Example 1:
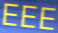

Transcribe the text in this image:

EEE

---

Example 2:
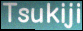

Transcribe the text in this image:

Tsukiji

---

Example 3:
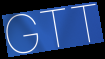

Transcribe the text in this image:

GTT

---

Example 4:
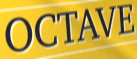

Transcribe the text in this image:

OCTAVE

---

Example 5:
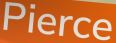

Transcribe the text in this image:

Pierce